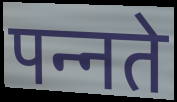
पन्नते